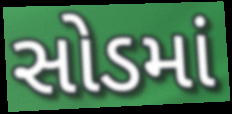
સોડમાં